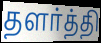
தளர்த்தி